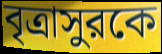
বৃত্রাসুরকে